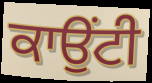
ਕਾਉਂਟੀ